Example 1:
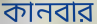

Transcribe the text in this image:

কানবার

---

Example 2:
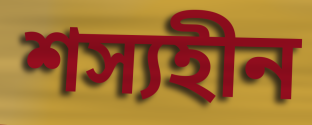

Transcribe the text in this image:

শস্যহীন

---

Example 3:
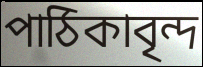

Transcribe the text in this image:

পাঠিকাবৃন্দ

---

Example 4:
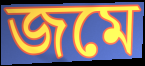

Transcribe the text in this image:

জমে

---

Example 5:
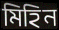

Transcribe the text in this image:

মিহিন